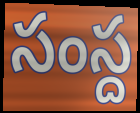
సంస్ద